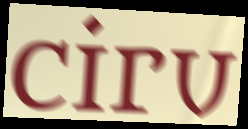
ciru